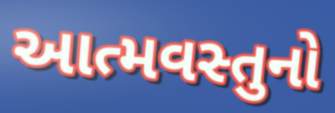
આત્મવસ્તુનો